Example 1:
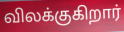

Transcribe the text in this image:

விலக்குகிறார்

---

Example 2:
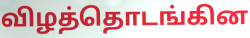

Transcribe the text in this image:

விழத்தொடங்கின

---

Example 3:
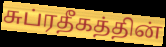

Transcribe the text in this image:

சுப்ரதீகத்தின்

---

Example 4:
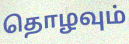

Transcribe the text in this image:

தொழவும்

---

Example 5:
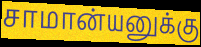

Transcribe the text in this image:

சாமான்யனுக்கு